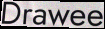
Drawee